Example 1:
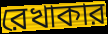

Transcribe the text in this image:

রেখাকার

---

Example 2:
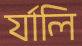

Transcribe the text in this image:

র্যালি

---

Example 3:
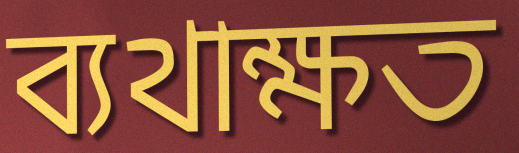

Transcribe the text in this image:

ব্যথাক্ষত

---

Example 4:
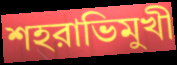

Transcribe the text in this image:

শহরাভিমুখী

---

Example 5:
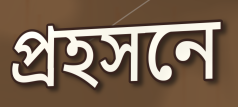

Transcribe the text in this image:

প্রহসনে